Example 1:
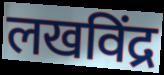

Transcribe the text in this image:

लखविंद्र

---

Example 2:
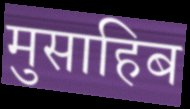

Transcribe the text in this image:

मुसाहिब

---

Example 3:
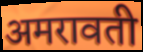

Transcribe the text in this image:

अमरावती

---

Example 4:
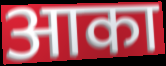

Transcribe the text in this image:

आका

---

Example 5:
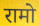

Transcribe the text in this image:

रामो